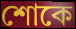
শোকে